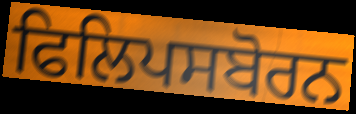
ਫਿਲਿਪਸਬੋਰਨ